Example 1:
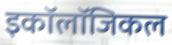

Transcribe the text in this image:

इकॉलॉजिकल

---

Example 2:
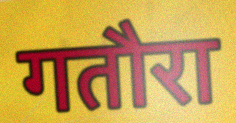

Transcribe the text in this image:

गतौरा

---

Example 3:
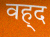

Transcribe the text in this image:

वह्द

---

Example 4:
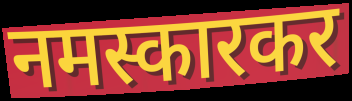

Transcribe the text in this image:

नमस्कारकर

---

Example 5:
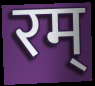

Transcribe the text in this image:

रम्